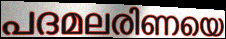
പദമലരിണയെ